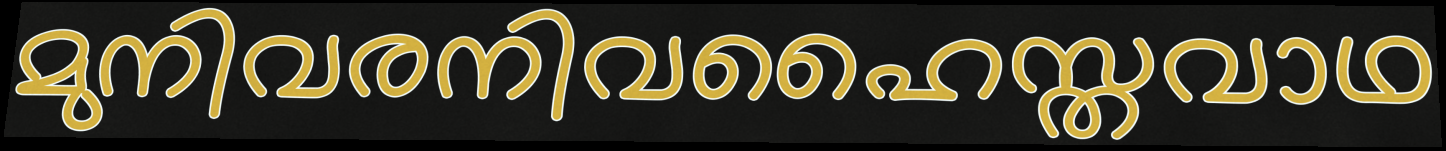
മുനിവരനിവഹൈസ്തവാഥ